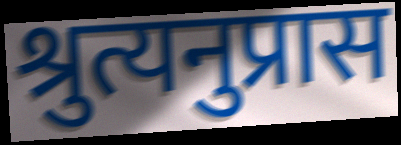
श्रुत्यनुप्रास